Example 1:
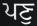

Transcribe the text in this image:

ਪਣੁ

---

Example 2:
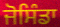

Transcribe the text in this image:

ਜੋਸਿੰਡਾ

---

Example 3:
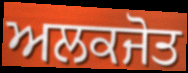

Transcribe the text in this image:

ਅਲਕਜੋਤ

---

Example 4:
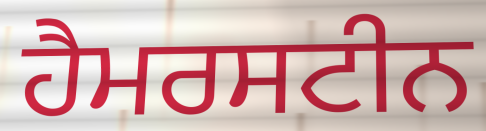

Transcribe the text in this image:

ਹੈਮਰਸਟੀਨ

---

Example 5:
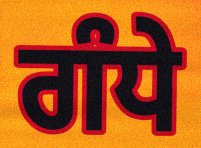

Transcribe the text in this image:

ਗੰਧੇ